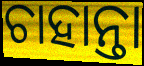
ଚାହାନ୍ତା